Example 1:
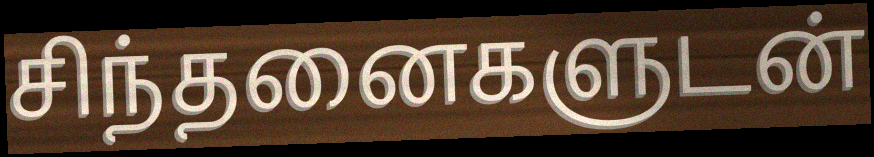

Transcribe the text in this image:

சிந்தனைகளுடன்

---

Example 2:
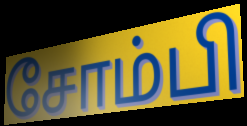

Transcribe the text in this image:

சோம்பி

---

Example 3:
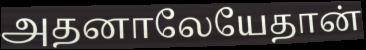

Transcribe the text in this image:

அதனாலேயேதான்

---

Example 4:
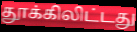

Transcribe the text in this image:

தூக்கிலிட்டது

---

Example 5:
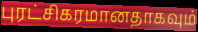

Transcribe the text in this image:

புரட்சிகரமானதாகவும்